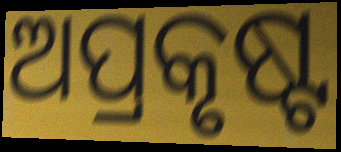
ଅପ୍ରକୃଷ୍ଟ